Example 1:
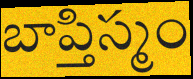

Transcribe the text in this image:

బాప్తిస్మం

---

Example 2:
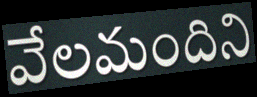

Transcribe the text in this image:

వేలమందిని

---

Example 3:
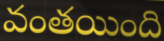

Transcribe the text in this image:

వంతయింది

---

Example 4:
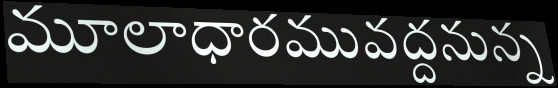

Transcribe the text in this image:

మూలాధారమువద్దనున్న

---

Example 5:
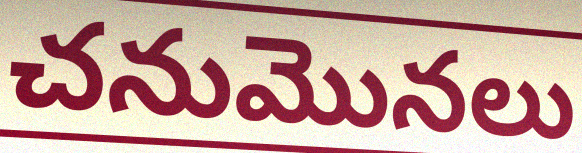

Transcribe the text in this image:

చనుమొనలు